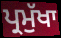
ਪ੍ਰਮੁੱਖਾ